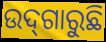
ଉଦ୍‌ଗାରୁଛି